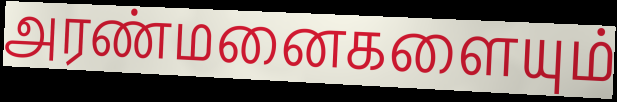
அரண்மனைகளையும்